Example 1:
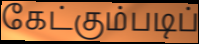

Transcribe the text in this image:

கேட்கும்படிப்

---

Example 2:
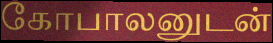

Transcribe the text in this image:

கோபாலனுடன்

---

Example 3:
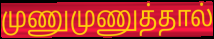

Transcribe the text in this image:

முணுமுணுத்தால்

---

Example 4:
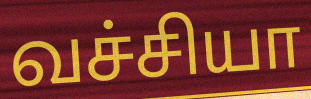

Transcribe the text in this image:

வச்சியா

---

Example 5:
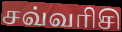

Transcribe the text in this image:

சவ்வரிசி